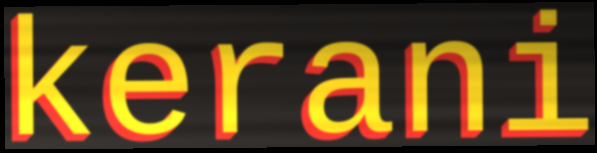
kerani